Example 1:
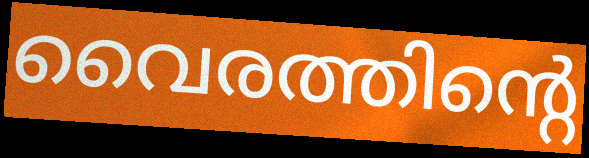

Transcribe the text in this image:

വൈരത്തിന്റെ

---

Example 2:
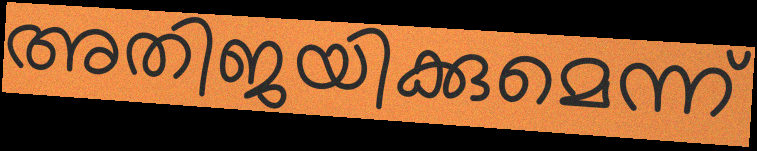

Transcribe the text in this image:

അതിജയിക്കുമെന്ന്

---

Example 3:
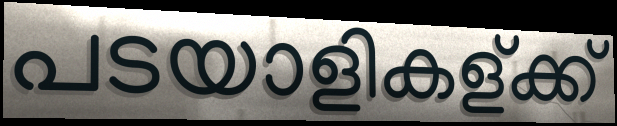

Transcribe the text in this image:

പടയാളികള്ക്ക്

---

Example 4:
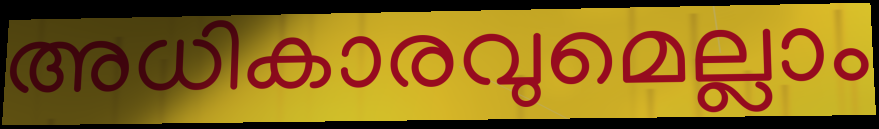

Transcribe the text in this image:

അധികാരവുമെല്ലാം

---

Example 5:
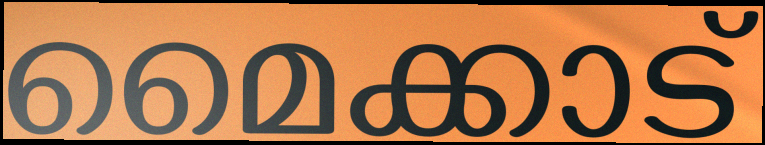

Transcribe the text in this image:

മൈക്കാട്